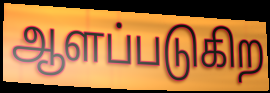
ஆளப்படுகிற